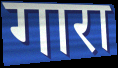
गारा